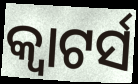
କ୍ଵାଟର୍ସ